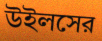
উইলসের